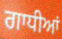
ਗਾਧੀਆਂ